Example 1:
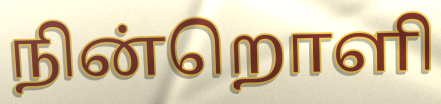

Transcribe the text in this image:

நின்றொளி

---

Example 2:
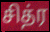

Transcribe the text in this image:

சித்ர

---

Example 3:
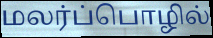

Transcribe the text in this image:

மலர்ப்பொழில்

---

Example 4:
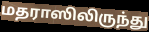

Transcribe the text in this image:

மதராஸிலிருந்து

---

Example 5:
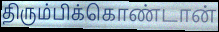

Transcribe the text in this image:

திரும்பிக்கொண்டான்